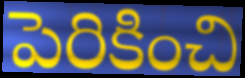
పెరికించి